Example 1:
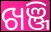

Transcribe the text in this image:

ଖଞ୍ଜି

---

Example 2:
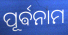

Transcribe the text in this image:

ପୂର୍ଵନାମ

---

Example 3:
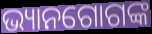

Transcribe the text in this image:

ଭ୍ୟାନଗୋଗଙ୍କ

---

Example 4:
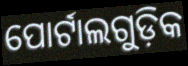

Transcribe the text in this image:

ପୋର୍ଟାଲଗୁଡ଼ିକ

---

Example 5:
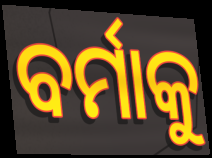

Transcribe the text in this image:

ବର୍ମାକୁ